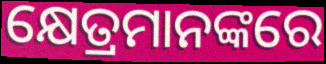
କ୍ଷେତ୍ରମାନଙ୍କରେ